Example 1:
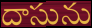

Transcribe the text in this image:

దాసును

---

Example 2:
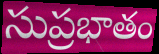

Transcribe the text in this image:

సుప్రభాతం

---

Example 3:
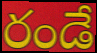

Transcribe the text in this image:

రండే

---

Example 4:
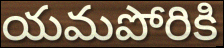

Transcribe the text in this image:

యమపోరికి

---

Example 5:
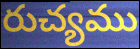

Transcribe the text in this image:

రుచ్యము